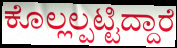
ಕೊಲ್ಲಲ್ಪಟ್ಟಿದ್ದಾರೆ